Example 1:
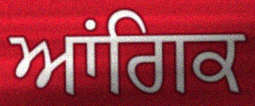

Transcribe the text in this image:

ਆਂਗਿਕ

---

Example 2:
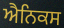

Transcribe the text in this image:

ਐਨਿਕਸ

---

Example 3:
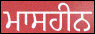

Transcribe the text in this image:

ਮਾਸਹੀਨ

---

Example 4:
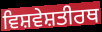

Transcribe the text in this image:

ਵਿਸ਼ਵੇਸ਼ਤੀਰਥ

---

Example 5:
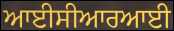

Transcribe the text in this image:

ਆਈਸੀਆਰਆਈ